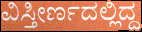
ವಿಸ್ತೀರ್ಣದಲ್ಲಿದ್ದ